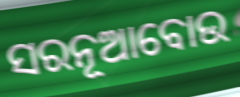
ସରନୂଆବୋଉ